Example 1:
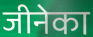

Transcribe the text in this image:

जीनेका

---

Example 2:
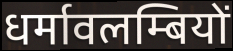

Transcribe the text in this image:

धर्मावलम्बियों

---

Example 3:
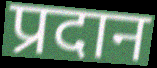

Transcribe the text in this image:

प्रदान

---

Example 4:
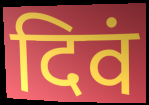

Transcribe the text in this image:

दिवं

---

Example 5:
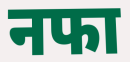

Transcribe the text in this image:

नफा